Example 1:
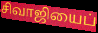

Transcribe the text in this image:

சிவாஜியைப்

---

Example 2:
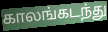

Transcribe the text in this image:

காலங்கடந்து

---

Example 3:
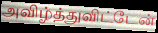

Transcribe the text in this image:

அவிழ்த்துவிட்டேன்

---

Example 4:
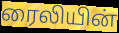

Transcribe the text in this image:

ரைலியின்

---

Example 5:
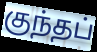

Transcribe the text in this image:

குந்தப்